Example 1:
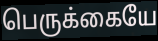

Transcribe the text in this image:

பெருக்கையே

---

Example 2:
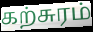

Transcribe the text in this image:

கற்சுரம்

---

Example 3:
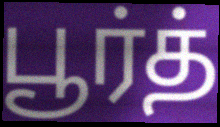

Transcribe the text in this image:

பூர்த்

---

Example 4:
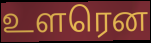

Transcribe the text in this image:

உளரென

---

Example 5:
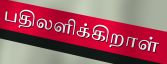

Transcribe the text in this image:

பதிலளிக்கிறாள்